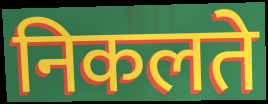
निकलते